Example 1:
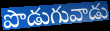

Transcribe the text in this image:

పొడుగువాడు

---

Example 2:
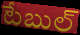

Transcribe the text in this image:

టేబుల్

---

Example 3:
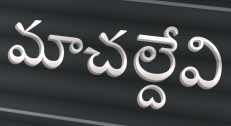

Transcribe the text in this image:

మాచల్దేవి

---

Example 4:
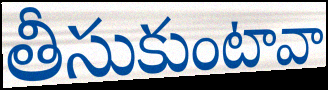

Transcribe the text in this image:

తీసుకుంటావా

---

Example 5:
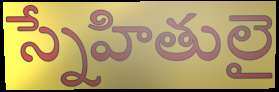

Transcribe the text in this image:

స్నేహితులై